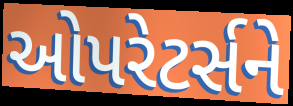
ઓપરેટર્સને